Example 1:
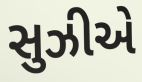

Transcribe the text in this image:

સુઝીએ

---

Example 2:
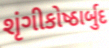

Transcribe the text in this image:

શૃંગીકોષ્ઠાર્બુદ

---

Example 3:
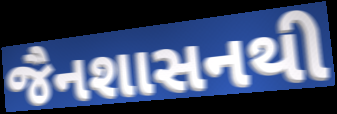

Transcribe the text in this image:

જૈનશાસનથી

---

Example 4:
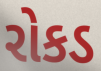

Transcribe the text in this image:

રોકડ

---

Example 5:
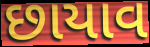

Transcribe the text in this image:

છાયાવ